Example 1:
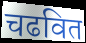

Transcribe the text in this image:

चढवित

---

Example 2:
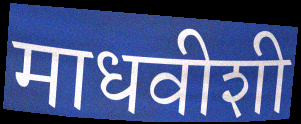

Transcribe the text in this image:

माधवीशी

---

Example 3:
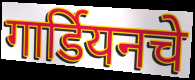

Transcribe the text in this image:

गार्डियनचे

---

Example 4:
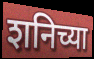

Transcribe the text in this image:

शनिच्या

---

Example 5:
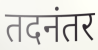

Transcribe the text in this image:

तदनंतर